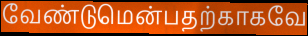
வேண்டுமென்பதற்காகவே